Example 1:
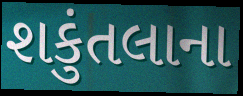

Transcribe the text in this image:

શકુંતલાના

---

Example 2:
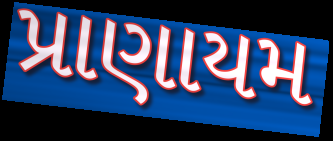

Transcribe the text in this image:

પ્રાણાયમ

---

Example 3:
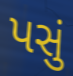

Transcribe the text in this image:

પસું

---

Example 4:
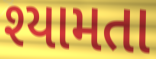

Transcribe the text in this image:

શ્યામતા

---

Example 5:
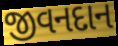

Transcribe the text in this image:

જીવનદાન